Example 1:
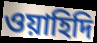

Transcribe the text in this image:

ওয়াহিদি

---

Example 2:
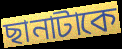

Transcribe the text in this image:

ছানাটাকে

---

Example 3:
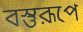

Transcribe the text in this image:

বস্তুরূপে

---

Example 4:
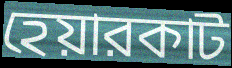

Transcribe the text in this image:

হেয়ারকাট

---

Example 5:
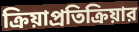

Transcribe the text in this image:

ক্রিয়াপ্রতিক্রিয়ার